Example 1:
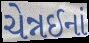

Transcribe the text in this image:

ચેન્નઈનાં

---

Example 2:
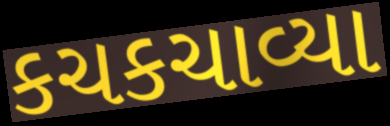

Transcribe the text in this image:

કચકચાવ્યા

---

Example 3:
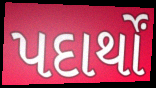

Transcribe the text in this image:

પદાર્થોં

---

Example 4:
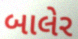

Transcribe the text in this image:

બાલેર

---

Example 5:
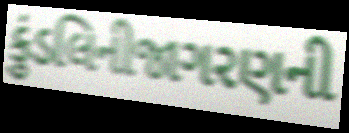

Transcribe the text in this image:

કુંડલિનીજાગરણની